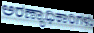
ಅರಣ್ಯಾಧಿಕಾರಿಗಳು